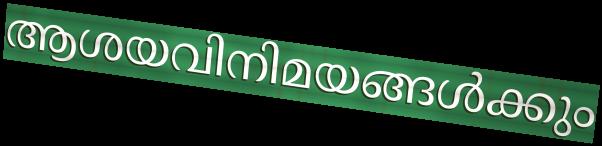
ആശയവിനിമയങ്ങൾക്കും